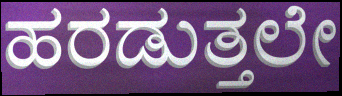
ಹರಡುತ್ತಲೇ